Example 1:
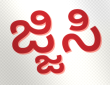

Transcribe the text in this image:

ಜ್ಜಿಸಿ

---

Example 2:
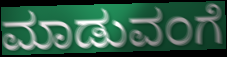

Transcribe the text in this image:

ಮಾಡುವಂಗೆ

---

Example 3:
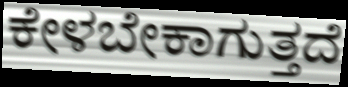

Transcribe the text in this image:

ಕೇಳಬೇಕಾಗುತ್ತದೆ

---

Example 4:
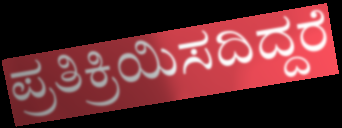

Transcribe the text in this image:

ಪ್ರತಿಕ್ರಿಯಿಸದಿದ್ದರೆ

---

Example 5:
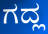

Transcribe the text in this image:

ಗದ್ಲ